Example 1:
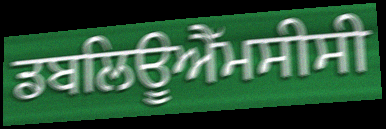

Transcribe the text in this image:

ਡਬਲਿਊਐੱਮਸੀਸੀ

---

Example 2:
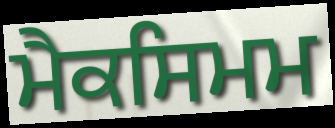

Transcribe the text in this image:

ਮੈਕਸਿਮਮ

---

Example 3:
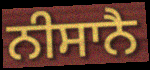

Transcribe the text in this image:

ਨੀਸਾਨੈ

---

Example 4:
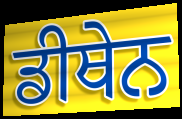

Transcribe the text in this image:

ਡੀਥੇਨ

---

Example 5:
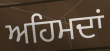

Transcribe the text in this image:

ਅਹਿਮਦਾਂ